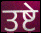
उष्टे